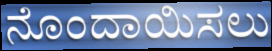
ನೊಂದಾಯಿಸಲು